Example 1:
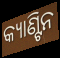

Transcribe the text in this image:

କ୍ୟାଣ୍ଟିନ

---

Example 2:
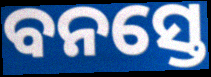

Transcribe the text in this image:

ବନସ୍ତେ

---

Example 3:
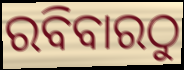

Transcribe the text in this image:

ରବିବାରଠୁ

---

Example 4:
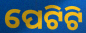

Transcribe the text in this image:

ପେଟିଟି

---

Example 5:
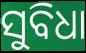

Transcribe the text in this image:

ସୁବିଧା